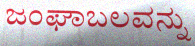
ಜಂಘಾಬಲವನ್ನು